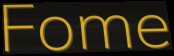
Fome